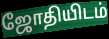
ஜோதியிடம்